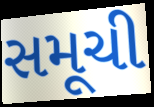
સમૂચી